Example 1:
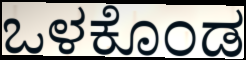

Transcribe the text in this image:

ಒಳಕೊಂಡ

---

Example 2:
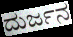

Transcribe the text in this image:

ದುರ್ಜನ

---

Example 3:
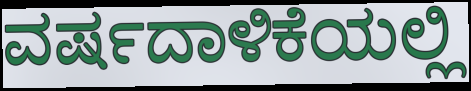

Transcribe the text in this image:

ವರ್ಷದಾಳಿಕೆಯಲ್ಲಿ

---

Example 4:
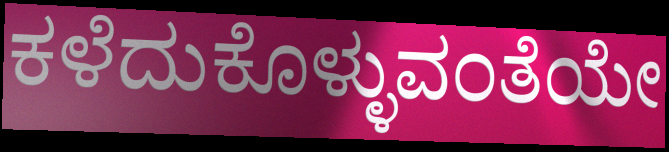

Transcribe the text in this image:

ಕಳೆದುಕೊಳ್ಳುವಂತೆಯೇ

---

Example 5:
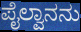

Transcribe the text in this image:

ಪೈಲ್ವಾನನು